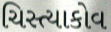
ચિસ્ત્યાકોવ